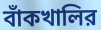
বাঁকখালির